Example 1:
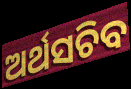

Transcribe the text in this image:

ଅର୍ଥସଚିବ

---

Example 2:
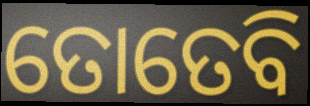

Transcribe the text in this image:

ତୋତେବି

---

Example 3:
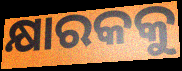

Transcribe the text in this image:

କ୍ଷାରକକୁ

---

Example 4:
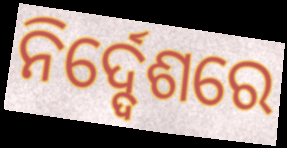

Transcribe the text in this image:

ନିର୍ଦ୍ଦେଶରେ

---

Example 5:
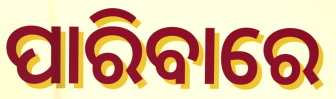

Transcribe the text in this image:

ପାରିବାରେ